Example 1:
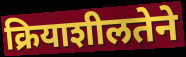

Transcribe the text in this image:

क्रियाशीलतेने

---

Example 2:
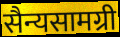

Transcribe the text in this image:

सैन्यसामग्री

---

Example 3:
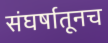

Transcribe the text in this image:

संघर्षातूनच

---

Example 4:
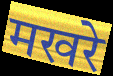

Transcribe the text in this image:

मखरे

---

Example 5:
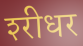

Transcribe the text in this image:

श्रीधर